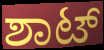
ಶಾಟ್